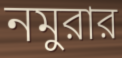
নমুরার